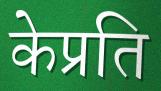
केप्रति